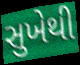
સુખેથી